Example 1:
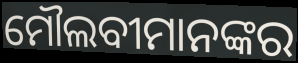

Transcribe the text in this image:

ମୌଲବୀମାନଙ୍କର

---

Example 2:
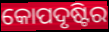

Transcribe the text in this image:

କୋପଦୃଷ୍ଟିର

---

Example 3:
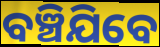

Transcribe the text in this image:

ବଞ୍ଚିଯିବେ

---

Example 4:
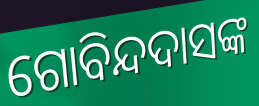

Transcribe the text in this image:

ଗୋବିନ୍ଦଦାସଙ୍କ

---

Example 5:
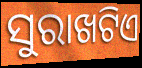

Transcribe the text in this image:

ସୁରାଖଟିଏ